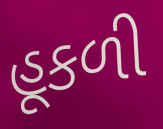
હૂકળી